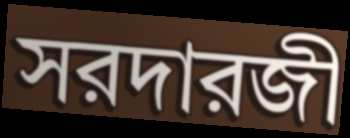
সরদারজী